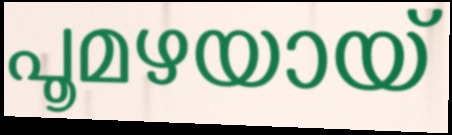
പൂമഴയായ്